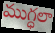
ముగ్ధలా